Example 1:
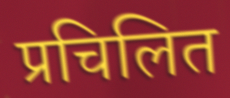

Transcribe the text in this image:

प्रचिलित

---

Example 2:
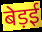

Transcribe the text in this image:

बेड़ई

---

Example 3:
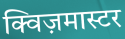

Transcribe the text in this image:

क्विज़मास्टर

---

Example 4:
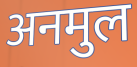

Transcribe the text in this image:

अनमुल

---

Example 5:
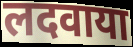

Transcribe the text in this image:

लदवाया